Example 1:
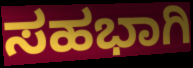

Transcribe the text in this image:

ಸಹಭಾಗಿ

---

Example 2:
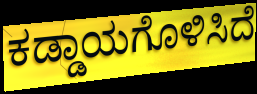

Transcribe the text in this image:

ಕಡ್ಡಾಯಗೊಳಿಸಿದೆ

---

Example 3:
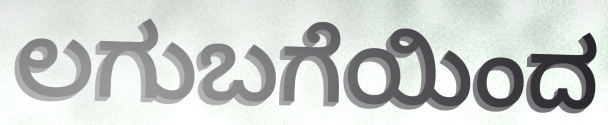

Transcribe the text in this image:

ಲಗುಬಗೆಯಿಂದ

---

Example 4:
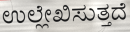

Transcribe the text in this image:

ಉಲ್ಲೇಖಿಸುತ್ತದೆ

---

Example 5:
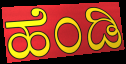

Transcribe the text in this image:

ಹೆಂಡಿ